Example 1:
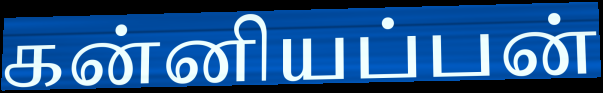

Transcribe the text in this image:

கன்னியப்பன்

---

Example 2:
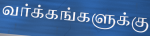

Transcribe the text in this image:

வர்க்கங்களுக்கு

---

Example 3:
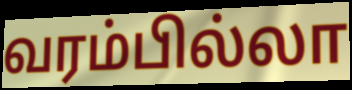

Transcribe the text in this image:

வரம்பில்லா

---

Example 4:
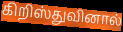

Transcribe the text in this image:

கிறிஸ்துவினால்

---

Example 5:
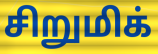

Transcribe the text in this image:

சிறுமிக்